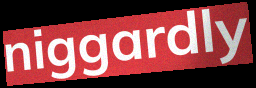
niggardly